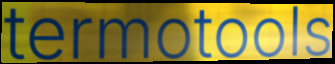
termotools